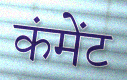
कंमेंट